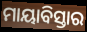
ମାୟାବିସ୍ତାର